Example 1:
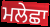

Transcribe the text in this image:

ਮਲੇਛਾ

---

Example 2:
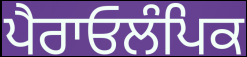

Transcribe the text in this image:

ਪੈਰਾਓਲੰਪਿਕ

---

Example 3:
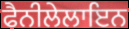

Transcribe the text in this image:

ਫੈਨੀਲੇਲਾਇਨ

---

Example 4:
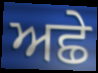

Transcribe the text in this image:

ਅਛੇ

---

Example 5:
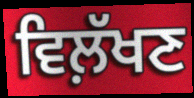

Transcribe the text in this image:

ਵਿਲ਼ੱਖਣ